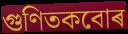
গুণিতকবোৰ